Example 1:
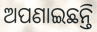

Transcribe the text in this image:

ଅପଣାଇଛନ୍ତି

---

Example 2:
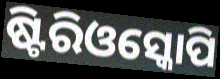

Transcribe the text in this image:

ଷ୍ଟିରିଓସ୍କୋପି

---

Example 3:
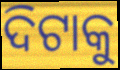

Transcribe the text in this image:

ଦିଟାକୁ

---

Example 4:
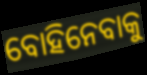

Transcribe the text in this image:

ବୋହିନେବାକୁ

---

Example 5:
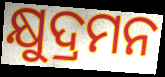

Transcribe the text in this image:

କ୍ଷୁଦ୍ରମନ